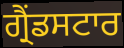
ਗ੍ਰੈਂਡਸਟਾਰ